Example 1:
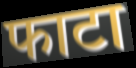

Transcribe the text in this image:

फाटा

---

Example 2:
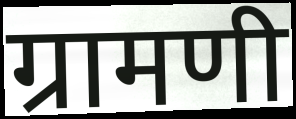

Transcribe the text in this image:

ग्रामणी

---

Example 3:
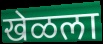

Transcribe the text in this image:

खेळला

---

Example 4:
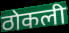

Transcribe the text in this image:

ठोकली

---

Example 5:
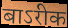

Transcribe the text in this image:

बाऽरीक